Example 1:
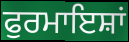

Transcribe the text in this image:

ਫੁਰਮਾਇਸ਼ਾਂ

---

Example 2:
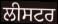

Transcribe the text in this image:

ਲੀਸਟਰ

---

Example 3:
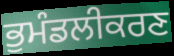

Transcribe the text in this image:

ਭੁਮੰਡਲੀਕਰਣ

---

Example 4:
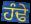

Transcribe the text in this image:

ਹੰਢੇ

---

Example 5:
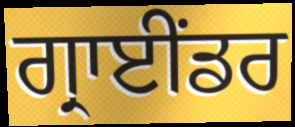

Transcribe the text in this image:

ਗ੍ਰਾਈਂਡਰ